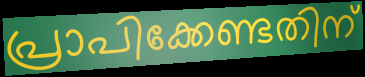
പ്രാപിക്കേണ്ടതിന്